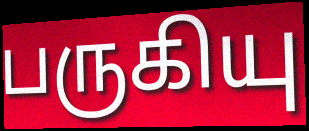
பருகியு